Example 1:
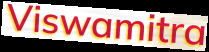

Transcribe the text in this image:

Viswamitra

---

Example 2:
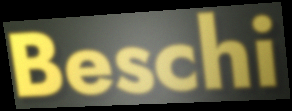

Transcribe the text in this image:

Beschi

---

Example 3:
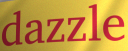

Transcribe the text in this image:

dazzle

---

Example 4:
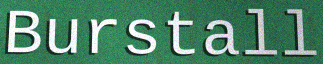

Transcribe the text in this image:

Burstall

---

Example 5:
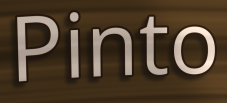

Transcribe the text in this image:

Pinto